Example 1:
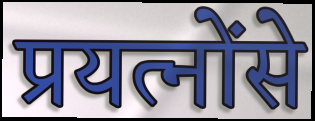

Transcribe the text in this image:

प्रयत्नोंसे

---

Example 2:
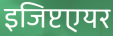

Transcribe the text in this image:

इजिप्टएयर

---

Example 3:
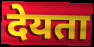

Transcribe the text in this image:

देयता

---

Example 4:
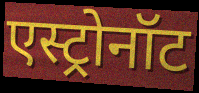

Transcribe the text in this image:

एस्ट्रोनॉट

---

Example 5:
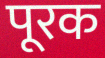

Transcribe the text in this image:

पूरक